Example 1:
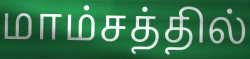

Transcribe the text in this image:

மாம்சத்தில்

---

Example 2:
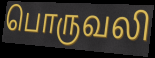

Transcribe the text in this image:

பொருவலி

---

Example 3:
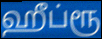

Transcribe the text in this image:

ஹீப்ரூ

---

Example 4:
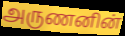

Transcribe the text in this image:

அருணனின்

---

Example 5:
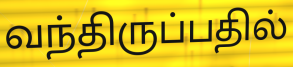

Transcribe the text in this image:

வந்திருப்பதில்